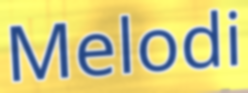
Melodi